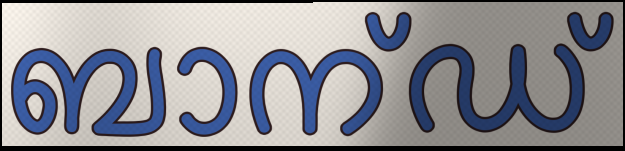
ബാന്ഡ്